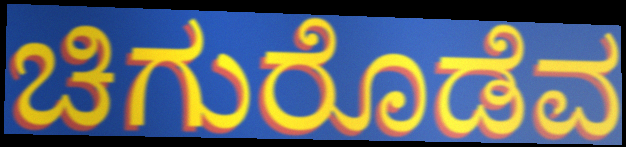
ಚಿಗುರೊಡೆವ